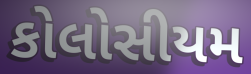
કોલોસીયમ